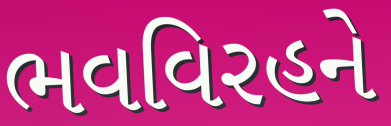
ભવવિરહને